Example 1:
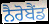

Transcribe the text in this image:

ਨੈਰੋਬੈਂਡ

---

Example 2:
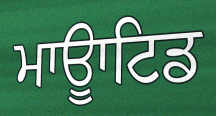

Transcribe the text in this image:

ਮਾਊਾਟਿਡ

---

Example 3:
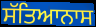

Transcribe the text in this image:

ਸੱਤਿਆਨਾਸ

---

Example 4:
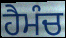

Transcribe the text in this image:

ਹੈਮੰਚ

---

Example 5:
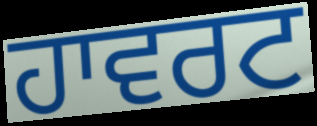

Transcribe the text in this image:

ਹਾਵਰਟ